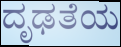
ದೃಢತೆಯ